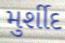
મુર્શીદ